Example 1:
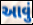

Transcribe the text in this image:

આવું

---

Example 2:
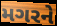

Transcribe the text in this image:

મગરને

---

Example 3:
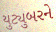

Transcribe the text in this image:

યુટ્યુબરને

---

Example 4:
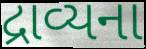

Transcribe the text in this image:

દ્રાવ્યના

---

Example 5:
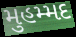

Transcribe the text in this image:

મુહમ્મદ